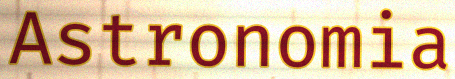
Astronomia